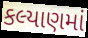
કલ્યાણમાં